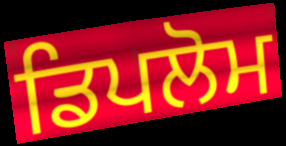
ਡਿਪਲੋਮ